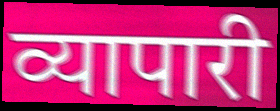
व्‍यापारी